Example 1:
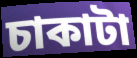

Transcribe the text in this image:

চাকাটা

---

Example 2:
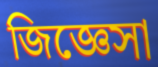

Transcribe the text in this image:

জিজ্ঞেসা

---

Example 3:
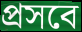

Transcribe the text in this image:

প্রসবে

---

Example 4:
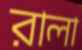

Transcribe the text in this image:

রালা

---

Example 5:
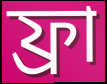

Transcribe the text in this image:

ফ্রা